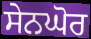
ਸੇਨਘੋਰ